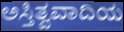
ಅಸ್ತಿತ್ವವಾದಿಯ